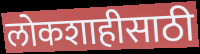
लोकशाहीसाठी